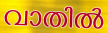
വാതിൽ